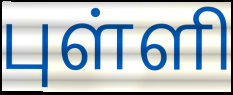
புள்ளி